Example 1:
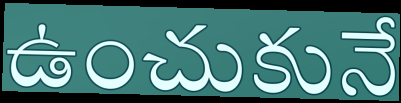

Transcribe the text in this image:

ఉంచుకునే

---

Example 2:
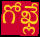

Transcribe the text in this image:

గోఖ్లే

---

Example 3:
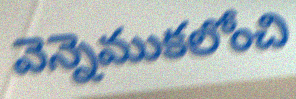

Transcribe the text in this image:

వెన్నెముకలోంచి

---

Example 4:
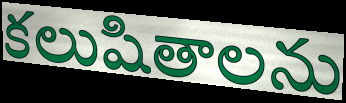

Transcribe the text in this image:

కలుషితాలను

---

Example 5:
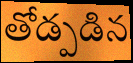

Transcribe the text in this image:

తోడ్పడిన